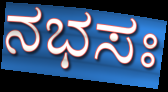
ನಭಸಃ